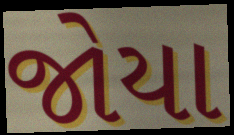
જોયા